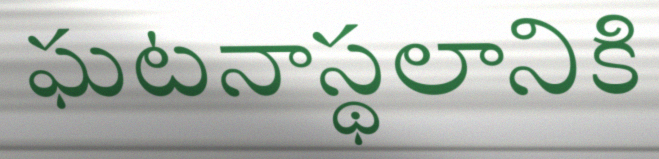
ఘటనాస్థలానికి